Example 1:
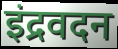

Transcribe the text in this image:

इंद्रवदन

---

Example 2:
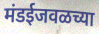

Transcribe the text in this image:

मंडईजवळच्या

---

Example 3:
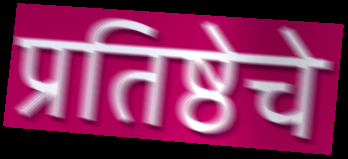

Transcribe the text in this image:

प्रतिष्ठेचे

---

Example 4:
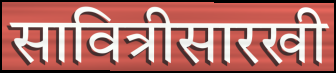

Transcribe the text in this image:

सावित्रीसारखी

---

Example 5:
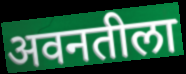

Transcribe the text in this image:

अवनतीला